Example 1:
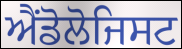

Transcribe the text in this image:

ਐਂਡੋਲੋਜਿਸਟ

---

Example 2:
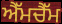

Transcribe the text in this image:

ਐੱਮਚੈੱਮ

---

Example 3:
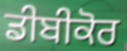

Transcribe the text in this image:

ਡੀਬੀਕੋਰ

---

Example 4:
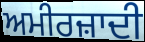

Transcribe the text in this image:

ਅਮੀਰਜ਼ਾਦੀ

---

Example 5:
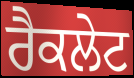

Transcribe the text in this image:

ਰੈਕਲੇਟ